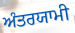
ਅੰਤਰਯਾਮੀ